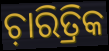
ଚ଼ାରିତ୍ରିକ